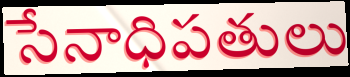
సేనాధిపతులు